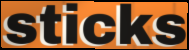
sticks